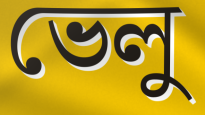
ভেলু